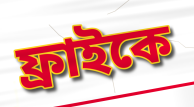
ফ্রাইকে